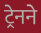
ट्रेनने